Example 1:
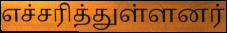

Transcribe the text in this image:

எச்சரித்துள்ளனர்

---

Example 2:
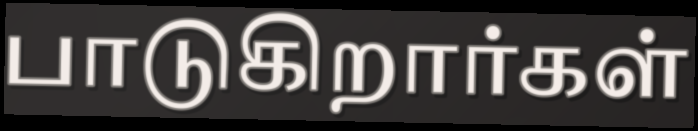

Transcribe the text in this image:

பாடுகிறார்கள்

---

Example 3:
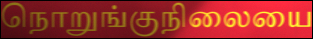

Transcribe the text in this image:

நொறுங்குநிலையை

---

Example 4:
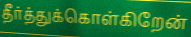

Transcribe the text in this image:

தீர்த்துக்கொள்கிறேன்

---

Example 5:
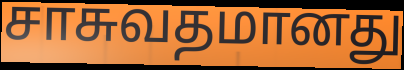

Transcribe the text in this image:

சாசுவதமானது